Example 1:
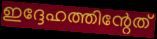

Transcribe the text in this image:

ഇദ്ദേഹത്തിന്റേത്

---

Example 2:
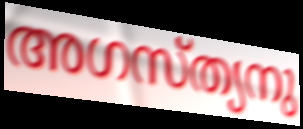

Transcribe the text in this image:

അഗസ്ത്യനു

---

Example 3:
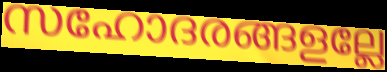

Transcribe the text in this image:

സഹോദരങ്ങളല്ലേ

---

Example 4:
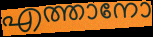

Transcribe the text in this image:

എത്താനോ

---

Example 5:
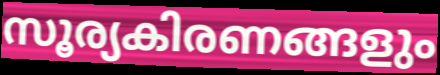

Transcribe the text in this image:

സൂര്യകിരണങ്ങളും